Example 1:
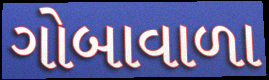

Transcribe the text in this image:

ગોબાવાળા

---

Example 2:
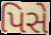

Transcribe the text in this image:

પિસે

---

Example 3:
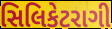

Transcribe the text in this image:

સિલિકેટરાગી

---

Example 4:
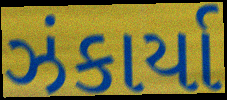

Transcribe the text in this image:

ઝંકાર્યા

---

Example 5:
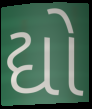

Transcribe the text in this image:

દ્યો